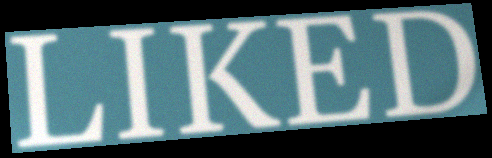
LIKED